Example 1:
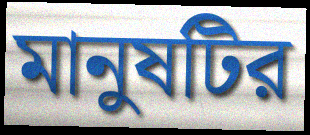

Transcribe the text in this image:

মানুষটির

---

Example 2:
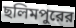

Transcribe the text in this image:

ছলিমপুরের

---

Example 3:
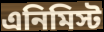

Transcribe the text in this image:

এনিমিস্ট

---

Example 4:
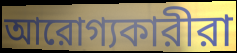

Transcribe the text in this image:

আরোগ্যকারীরা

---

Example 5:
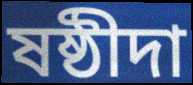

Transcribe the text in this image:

ষষ্ঠীদা